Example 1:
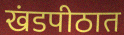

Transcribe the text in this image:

खंडपीठात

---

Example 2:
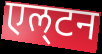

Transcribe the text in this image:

एल्टन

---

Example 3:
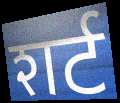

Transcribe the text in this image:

शर्ट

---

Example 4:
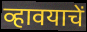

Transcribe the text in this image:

व्हावयाचें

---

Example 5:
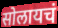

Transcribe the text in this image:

सोलायचं